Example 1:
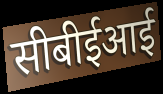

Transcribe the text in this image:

सीबीईआई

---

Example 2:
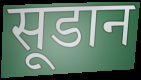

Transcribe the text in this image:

सूडान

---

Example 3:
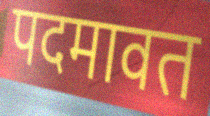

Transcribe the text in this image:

पदमावत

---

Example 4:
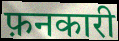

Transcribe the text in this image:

फ़नकारी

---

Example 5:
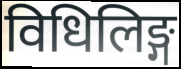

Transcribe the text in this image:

विधिलिङ्ग